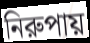
নিরুপায়